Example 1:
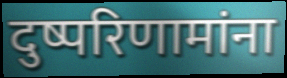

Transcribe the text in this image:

दुष्परिणामांना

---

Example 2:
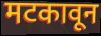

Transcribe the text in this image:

मटकावून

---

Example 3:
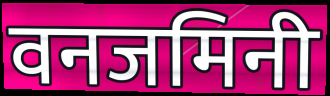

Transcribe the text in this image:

वनजमिनी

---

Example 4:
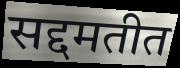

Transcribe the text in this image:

सद्दमतीत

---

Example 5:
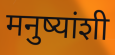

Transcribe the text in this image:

मनुष्यांशी